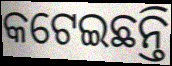
କଟେଇଛନ୍ତି